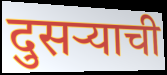
दुसऱ्याची